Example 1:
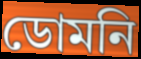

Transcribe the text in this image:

ডোমনি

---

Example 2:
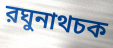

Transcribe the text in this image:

রঘুনাথচক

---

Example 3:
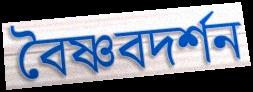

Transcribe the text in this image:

বৈষ্ণবদর্শন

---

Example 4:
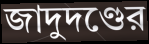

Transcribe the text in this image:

জাদুদণ্ডের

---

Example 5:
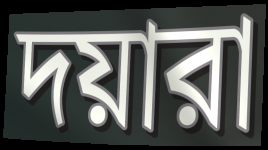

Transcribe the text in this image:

দয়ারা